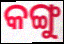
କଙ୍ଗୁ